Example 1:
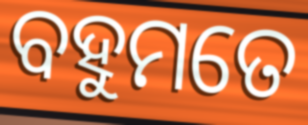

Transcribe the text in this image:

ବହୁମତେ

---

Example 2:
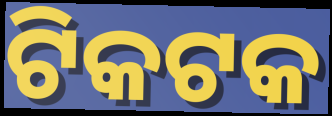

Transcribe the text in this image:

ଟିକଟକ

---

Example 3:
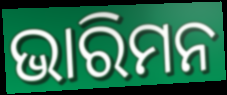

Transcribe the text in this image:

ଭାରିମନ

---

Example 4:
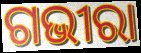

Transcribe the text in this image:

ଗଭୀରା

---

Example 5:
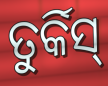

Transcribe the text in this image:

ତୁର୍କିସ୍